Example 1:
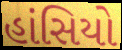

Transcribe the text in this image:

હાંસિયો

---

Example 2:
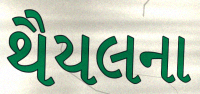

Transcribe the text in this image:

થૈયલના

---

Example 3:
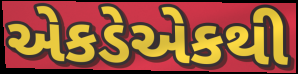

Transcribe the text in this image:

એકડેએકથી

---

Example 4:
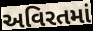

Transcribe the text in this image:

અવિરતમાં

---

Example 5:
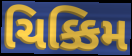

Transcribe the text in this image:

ચિક્કિમ